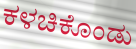
ಕಳಚಿಕೊಂಡು